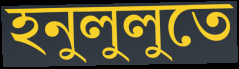
হনুলুলুতে